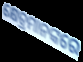
କ୍ଷେତ୍ରମାନଙ୍କରେ